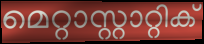
മെറ്റാസ്റ്റാറ്റിക്